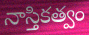
నాస్తికత్వం